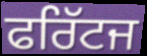
ਫਰਿੱਟਜ